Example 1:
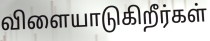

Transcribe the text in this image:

விளையாடுகிறீர்கள்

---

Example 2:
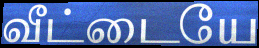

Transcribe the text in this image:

வீட்டையே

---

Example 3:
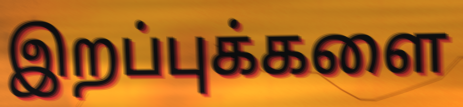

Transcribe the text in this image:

இறப்புக்களை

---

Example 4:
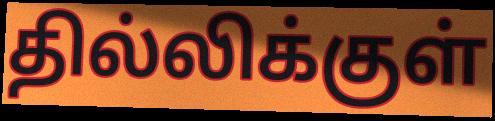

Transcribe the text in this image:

தில்லிக்குள்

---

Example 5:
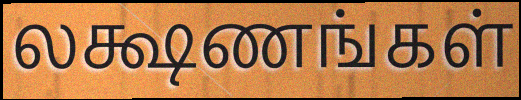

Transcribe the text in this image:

லக்ஷணங்கள்